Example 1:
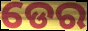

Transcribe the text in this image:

ଡେର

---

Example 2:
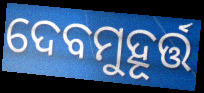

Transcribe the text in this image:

ଦେବମୁହୂର୍ତ୍ତ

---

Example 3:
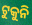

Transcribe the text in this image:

ଟୁକୁନି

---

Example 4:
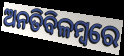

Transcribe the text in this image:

ଅନତିବିଳମ୍ବରେ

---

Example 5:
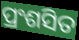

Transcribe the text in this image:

ପ୍ରଂଶସିତ